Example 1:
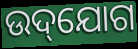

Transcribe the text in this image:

ଉଦ୍‌ଯୋଗ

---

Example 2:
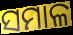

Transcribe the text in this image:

ସମାଳ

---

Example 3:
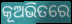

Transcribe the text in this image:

କୂଅଭିତରେ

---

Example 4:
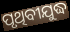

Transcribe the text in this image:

ପୃଥିବୀଯୁଦ୍ଧ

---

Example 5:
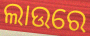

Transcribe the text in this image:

ଲାଉରେ